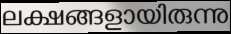
ലക്ഷങ്ങളായിരുന്നു